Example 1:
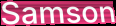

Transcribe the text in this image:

Samson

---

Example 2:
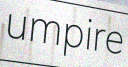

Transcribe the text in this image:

umpire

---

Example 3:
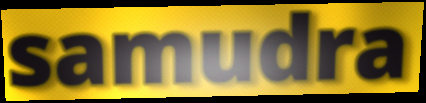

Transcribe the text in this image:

samudra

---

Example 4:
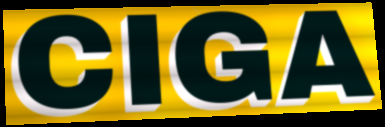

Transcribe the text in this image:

CIGA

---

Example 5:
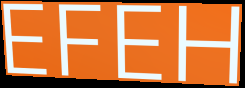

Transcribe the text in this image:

EFEH